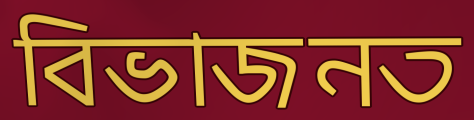
বিভাজনত